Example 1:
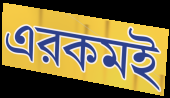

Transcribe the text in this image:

এরকমই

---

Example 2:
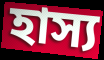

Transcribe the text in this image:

হাস্য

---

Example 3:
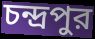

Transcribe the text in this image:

চন্দ্রপুর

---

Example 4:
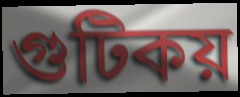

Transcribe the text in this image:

গুটিকয়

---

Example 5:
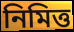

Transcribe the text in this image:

নিমিত্ত